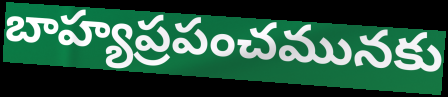
బాహ్యప్రపంచమునకు